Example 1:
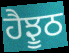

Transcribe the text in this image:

ਹੈਝੂਠ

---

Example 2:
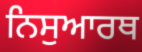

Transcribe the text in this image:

ਨਿਸੁਆਰਥ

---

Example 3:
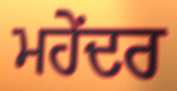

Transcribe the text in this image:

ਮਹੇਂਦਰ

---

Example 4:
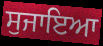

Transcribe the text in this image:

ਸੁਜਾਇਆ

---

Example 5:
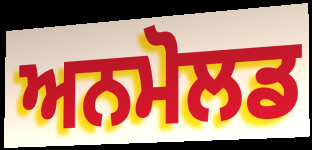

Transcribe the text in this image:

ਅਨਮੋਲਡ